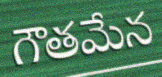
గౌతమేన